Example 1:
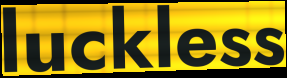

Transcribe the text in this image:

luckless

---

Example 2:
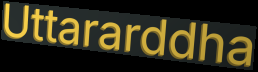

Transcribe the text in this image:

Uttararddha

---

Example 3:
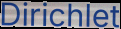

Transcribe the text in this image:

Dirichlet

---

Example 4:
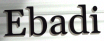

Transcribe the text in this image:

Ebadi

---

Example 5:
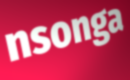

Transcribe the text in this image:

nsonga